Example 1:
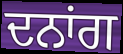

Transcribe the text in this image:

ਦਨਾਂਗ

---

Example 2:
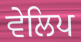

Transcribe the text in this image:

ਵੇਲਿਪ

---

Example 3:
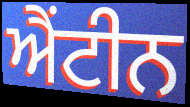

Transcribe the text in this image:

ਐਂਟੀਨ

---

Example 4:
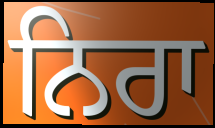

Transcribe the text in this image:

ਨਿਰਾ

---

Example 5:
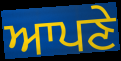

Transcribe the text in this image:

ਆਪਣੇ